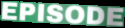
EPISODE